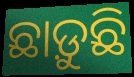
ଛାଡ଼ୁଛି